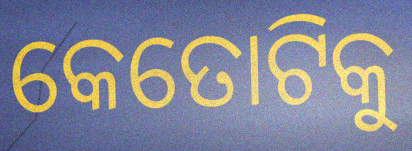
କେତୋଟିକୁ